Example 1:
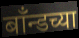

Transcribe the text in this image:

बाँन्डच्या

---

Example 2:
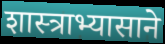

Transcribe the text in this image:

शास्त्राभ्यासाने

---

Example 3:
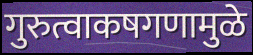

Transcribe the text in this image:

गुरुत्वाकषगणामुळे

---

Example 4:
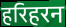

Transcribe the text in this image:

हरिहरन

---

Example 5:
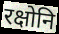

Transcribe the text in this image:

रक्षोनि